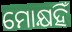
ମୋକ୍ଷହିଁ